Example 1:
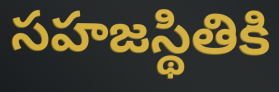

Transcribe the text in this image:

సహజస్థితికి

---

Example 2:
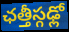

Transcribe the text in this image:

ఛత్తీస్గఢ్లో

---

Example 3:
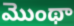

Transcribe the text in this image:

మొంథా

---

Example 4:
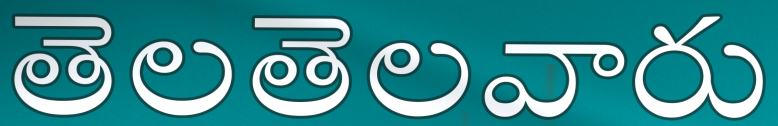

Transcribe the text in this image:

తెలతెలవారు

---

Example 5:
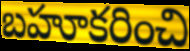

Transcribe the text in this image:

బహూకరించి